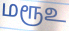
மரூஉ